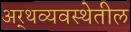
अर्थव्यवस्थेतील